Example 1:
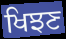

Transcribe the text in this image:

ਖਿਝਣ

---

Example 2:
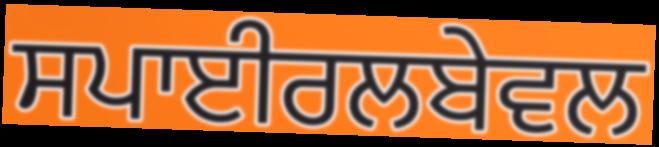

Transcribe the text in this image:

ਸਪਾਈਰਲਬੇਵਲ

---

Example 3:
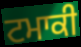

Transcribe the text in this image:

ਟਮਾਕੀ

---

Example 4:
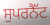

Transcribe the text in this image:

ਸੁਪਰਨੈੱਟ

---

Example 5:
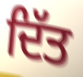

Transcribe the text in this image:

ਦਿੱਤ